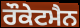
ਰੌਕੇਟਮੈਨ